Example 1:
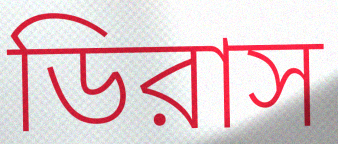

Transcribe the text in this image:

ডিরাস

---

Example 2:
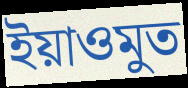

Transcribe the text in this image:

ইয়াওমুত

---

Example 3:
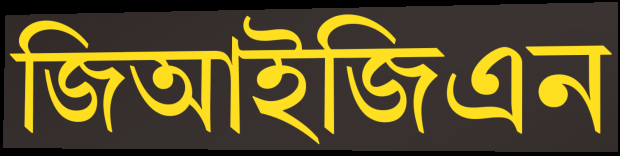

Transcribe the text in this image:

জিআইজিএন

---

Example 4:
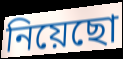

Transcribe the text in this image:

নিয়েছো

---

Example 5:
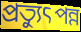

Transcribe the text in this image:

প্রত্যুৎপন্ন